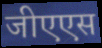
जीएएस